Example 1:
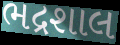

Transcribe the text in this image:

ભદ્રશાલ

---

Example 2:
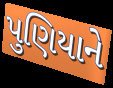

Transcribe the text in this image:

પુણિયાને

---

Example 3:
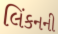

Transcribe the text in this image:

લિંકનની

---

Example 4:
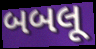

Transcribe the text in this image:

બબલૂ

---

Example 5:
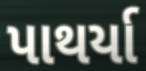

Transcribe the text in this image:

પાથર્યા